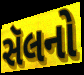
સૅલનો